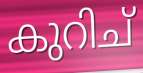
കുറിച്